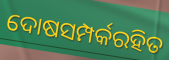
ଦୋଷସମ୍ପର୍କରହିତ